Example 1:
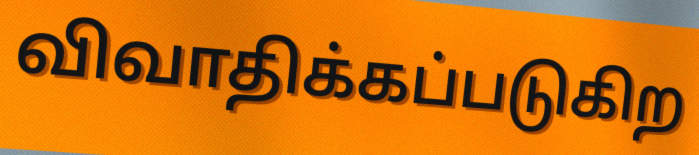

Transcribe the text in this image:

விவாதிக்கப்படுகிற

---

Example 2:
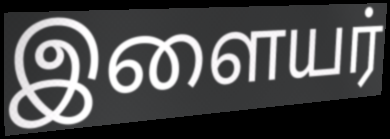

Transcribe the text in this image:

இளையர்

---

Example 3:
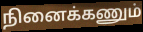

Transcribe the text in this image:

நினைக்கணும்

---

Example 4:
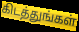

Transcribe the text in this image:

கிடத்துங்கள்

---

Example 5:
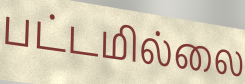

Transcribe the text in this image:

பட்டமில்லை